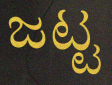
ಜಟ್ಟ